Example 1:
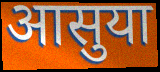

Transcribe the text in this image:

आसुया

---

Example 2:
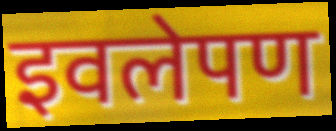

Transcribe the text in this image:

इवलेपण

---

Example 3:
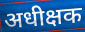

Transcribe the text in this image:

अधीक्षक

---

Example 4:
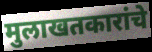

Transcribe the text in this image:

मुलाखतकारांचे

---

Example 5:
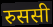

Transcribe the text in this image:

रुससी